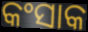
କଂସାକ